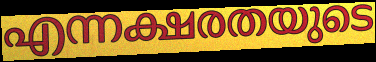
എന്നക്ഷരതയുടെ